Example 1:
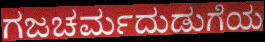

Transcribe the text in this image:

ಗಜಚರ್ಮದುಡುಗೆಯ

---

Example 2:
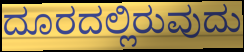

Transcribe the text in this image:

ದೂರದಲ್ಲಿರುವುದು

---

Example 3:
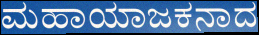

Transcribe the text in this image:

ಮಹಾಯಾಜಕನಾದ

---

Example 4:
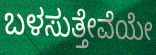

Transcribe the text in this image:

ಬಳಸುತ್ತೇವೆಯೇ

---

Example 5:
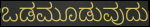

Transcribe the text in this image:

ಒಡಮೂಡುವುದು